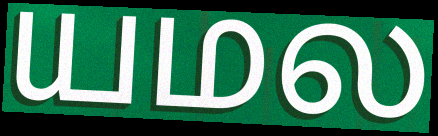
யமல